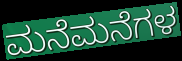
ಮನೆಮನೆಗಳ